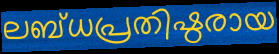
ലബ്ധപ്രതിഷ്ഠരായ